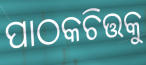
ପାଠକଚିତ୍ତକୁ